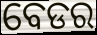
ବେଡର